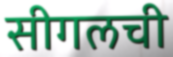
सीगलची